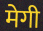
मेगी